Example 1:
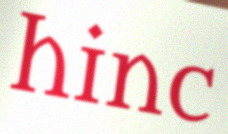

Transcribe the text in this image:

hinc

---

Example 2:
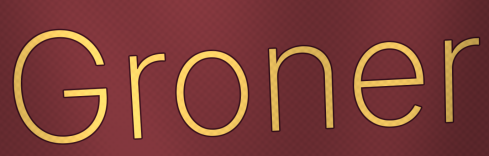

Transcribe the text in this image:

Groner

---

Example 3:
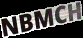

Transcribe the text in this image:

NBMCH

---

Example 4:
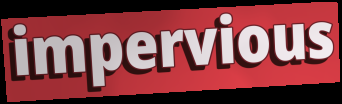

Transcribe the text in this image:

impervious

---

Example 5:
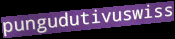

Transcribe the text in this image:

pungudutivuswiss